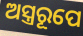
ଅସ୍ତ୍ରରୂପେ